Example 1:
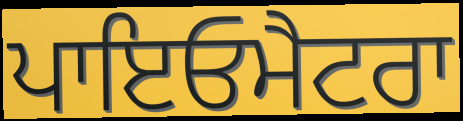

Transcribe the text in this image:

ਪਾਇਓਮੈਟਰਾ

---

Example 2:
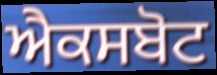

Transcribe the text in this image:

ਐਕਸਬੋਟ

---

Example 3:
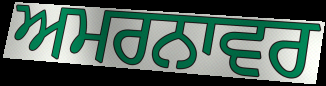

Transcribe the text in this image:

ਅਮਰਨਾਵਰ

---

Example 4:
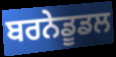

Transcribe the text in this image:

ਬਰਨੇਡੂਡਲ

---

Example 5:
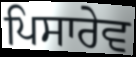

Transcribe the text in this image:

ਪਿਸਾਰੇਵ